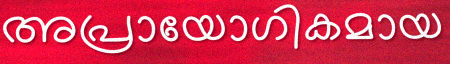
അപ്രായോഗികമായ